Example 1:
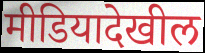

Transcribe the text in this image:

मीडियादेखील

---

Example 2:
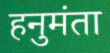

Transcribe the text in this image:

हनुमंता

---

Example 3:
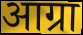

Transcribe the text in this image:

आग्रा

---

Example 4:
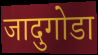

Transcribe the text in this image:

जादुगोडा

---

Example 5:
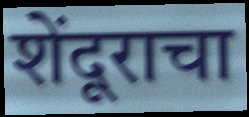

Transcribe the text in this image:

शेंदूराचा